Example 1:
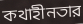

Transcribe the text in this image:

কথাহীনতার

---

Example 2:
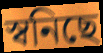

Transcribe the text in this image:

স্বনিছে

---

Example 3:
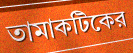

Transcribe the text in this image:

তামাকটিকের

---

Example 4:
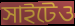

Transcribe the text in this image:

সাইটেও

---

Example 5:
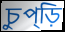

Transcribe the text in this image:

চুপ্‌ড়ি